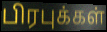
பிரபுக்கள்